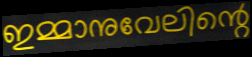
ഇമ്മാനുവേലിന്റെ